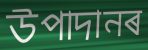
উপাদানৰ